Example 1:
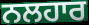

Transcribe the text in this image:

ਨਲਹਾਰ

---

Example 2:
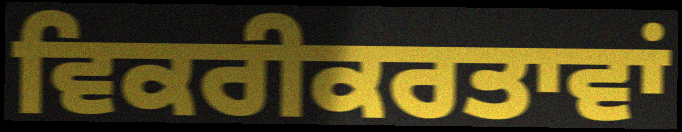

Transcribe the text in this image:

ਵਿਕਰੀਕਰਤਾਵਾਂ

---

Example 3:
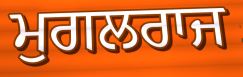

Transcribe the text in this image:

ਮੁਗਲਰਾਜ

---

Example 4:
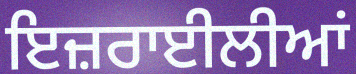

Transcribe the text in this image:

ਇਜ਼ਰਾਈਲੀਆਂ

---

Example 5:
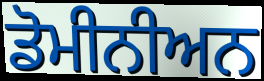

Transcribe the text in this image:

ਡੋਮੀਨੀਅਨ